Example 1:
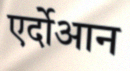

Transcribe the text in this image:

एर्दोआन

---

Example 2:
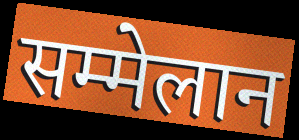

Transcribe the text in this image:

सम्मेलान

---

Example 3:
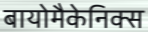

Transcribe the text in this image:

बायोमैकेनिक्स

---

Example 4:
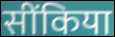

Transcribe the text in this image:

सींकिया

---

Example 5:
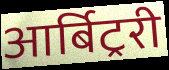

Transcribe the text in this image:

आर्बिट्ररी